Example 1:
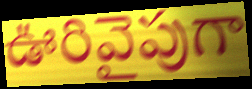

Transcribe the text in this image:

ఊరివైపుగా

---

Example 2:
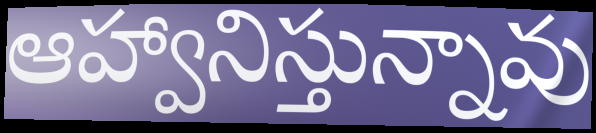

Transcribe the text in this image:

ఆహ్వానిస్తున్నావు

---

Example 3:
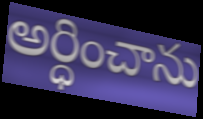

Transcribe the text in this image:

అర్ధించాను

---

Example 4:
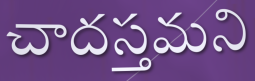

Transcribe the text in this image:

చాదస్తమని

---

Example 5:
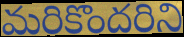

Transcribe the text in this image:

మరికొందరిని